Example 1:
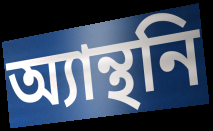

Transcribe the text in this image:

অ্যান্থনি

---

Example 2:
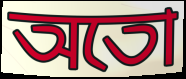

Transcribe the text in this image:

অতো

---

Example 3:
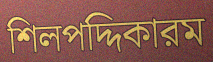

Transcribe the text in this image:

শিলপদ্দিকারম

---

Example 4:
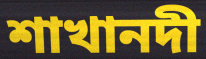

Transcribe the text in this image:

শাখানদী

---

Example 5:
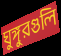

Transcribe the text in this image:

ঘুঙ্গুরগুলি